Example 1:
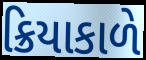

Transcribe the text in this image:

ક્રિયાકાળે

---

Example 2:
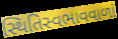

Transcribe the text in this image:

સ્થિતિસ્વભાવવાળાં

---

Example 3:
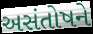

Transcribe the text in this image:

અસંતોષને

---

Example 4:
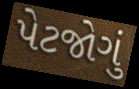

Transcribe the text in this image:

પેટજોગું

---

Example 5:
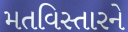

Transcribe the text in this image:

મતવિસ્તારને